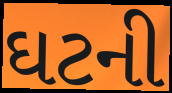
ઘટની